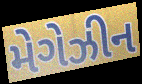
મેગેઝીન